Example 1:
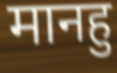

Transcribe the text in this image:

मानहु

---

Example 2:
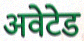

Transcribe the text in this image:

अवेटेड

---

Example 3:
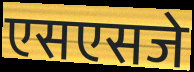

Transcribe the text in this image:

एसएसजे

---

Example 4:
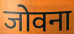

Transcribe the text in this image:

जोवना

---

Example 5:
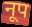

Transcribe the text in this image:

नूप